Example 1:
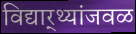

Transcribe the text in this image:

विद्यार्थ्यांजवळ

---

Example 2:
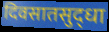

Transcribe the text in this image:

दिवसातसुद्धा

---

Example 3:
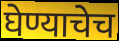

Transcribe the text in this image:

घेण्याचेच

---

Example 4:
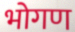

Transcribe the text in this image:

भोगण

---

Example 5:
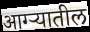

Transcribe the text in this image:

आग्ऱ्यातील